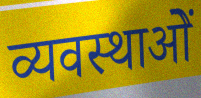
व्यवस्थाओें